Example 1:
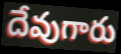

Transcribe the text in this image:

దేవుగారు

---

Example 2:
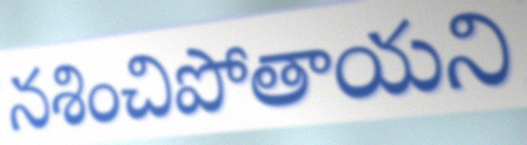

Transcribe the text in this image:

నశించిపోతాయని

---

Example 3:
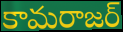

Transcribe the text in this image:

కామరాజర్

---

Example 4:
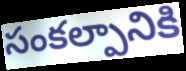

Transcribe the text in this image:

సంకల్పానికి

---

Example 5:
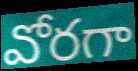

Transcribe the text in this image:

వోరగా